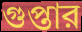
গুপ্তার